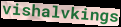
vishalvkings